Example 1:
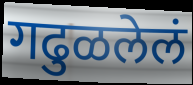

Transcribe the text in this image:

गढुळलेलं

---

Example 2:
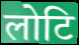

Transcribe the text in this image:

लोटि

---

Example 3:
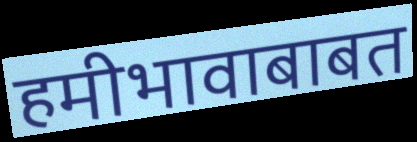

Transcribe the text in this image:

हमीभावाबाबत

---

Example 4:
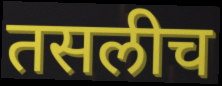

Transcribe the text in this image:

तसलीच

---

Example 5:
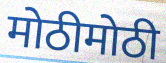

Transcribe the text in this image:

मोठीमोठी